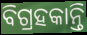
ବିଗ୍ରହକାନ୍ତି